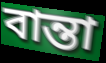
বান্তা